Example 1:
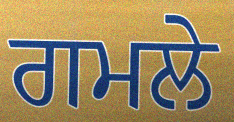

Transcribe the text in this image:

ਗਮਲੇ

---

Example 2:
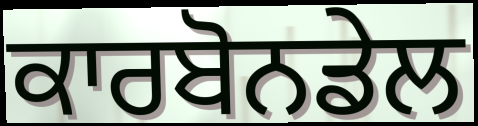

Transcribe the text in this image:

ਕਾਰਬੋਨਡੇਲ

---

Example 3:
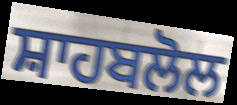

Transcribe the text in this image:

ਸ਼ਾਹਬਲੋਲ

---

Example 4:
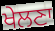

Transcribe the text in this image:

ਖੇਲਣਾ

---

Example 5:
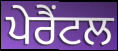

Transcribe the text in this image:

ਪੇਰੈਂਟਲ